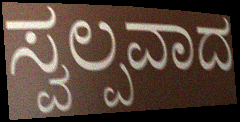
ಸ್ವಲ್ಪವಾದ